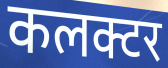
कलक्टर